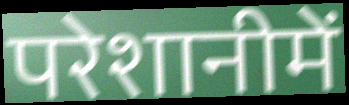
परेशानीमें